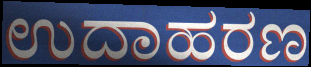
ಉದಾಹರಣ